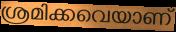
ശ്രമിക്കവെയാണ്